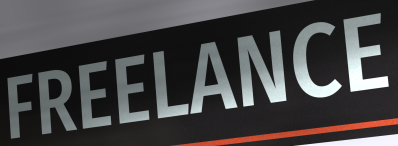
FREELANCE